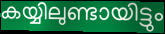
കയ്യിലുണ്ടായിട്ടും